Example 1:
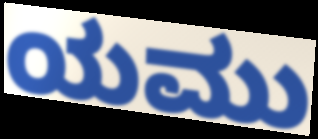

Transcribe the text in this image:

ಯಮು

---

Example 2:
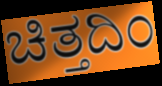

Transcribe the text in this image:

ಚಿತ್ತದಿಂ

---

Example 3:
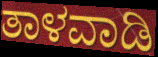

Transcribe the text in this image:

ತಾಳವಾಡಿ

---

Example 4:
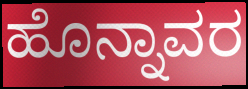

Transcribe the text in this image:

ಹೊನ್ನಾವರ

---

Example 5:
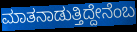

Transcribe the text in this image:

ಮಾತನಾಡುತ್ತಿದ್ದೇನೆಂಬ